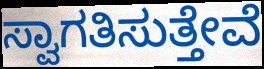
ಸ್ವಾಗತಿಸುತ್ತೇವೆ